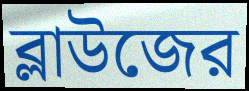
ব্লাউজের